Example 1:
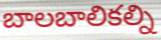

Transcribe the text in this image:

బాలబాలికల్ని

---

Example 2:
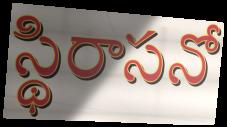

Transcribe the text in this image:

స్థిరాసనో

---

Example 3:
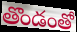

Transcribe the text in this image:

తొండంతో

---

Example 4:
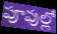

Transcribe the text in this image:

పూవుల్లో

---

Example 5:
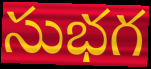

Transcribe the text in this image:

సుభగ